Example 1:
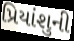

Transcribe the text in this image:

પ્રિયાંશુની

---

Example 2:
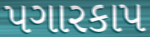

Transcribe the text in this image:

પગારકાપ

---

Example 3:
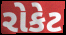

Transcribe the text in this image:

રોકેટ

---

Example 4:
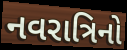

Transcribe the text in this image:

નવરાત્રિનો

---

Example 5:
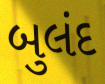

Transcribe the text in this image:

બુલંદ